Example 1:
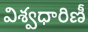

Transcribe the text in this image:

విశ్వధారిణీ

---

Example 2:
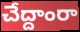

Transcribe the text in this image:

చేద్దాంరా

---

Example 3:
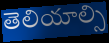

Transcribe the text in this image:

తెలియాల్సి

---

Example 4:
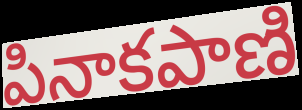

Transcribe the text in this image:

పినాకపాణి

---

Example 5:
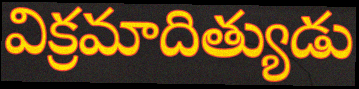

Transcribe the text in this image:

విక్రమాదిత్యుడు